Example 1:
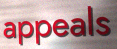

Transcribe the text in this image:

appeals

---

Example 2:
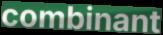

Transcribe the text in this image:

combinant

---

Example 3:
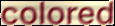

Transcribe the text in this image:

colored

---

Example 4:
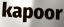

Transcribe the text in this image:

kapoor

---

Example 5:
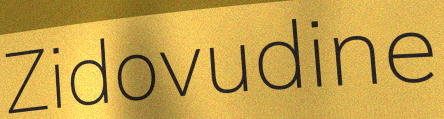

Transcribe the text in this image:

Zidovudine